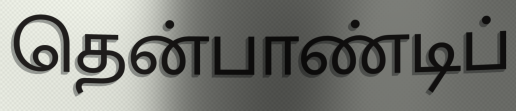
தென்பாண்டிப்